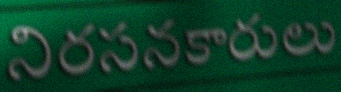
నిరసనకారులు